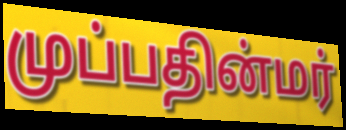
முப்பதின்மர்